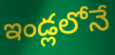
ఇండ్లలోనే